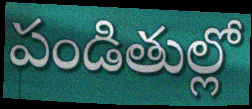
పండితుల్లో